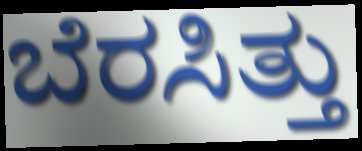
ಬೆರಸಿತ್ತು